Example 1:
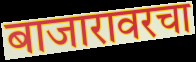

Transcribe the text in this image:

बाजारावरचा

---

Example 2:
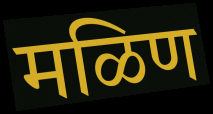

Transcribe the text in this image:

मळिण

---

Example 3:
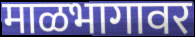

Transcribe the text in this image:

माळभागावर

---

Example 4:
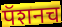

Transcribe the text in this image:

पॅशनच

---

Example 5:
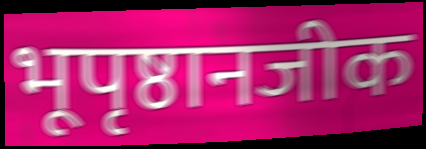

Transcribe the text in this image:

भूपृष्ठानजीक